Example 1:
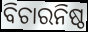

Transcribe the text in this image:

ବିଚାରନିଷ୍ଠ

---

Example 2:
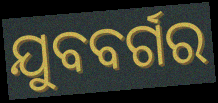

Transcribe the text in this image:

ଯୁବବର୍ଗର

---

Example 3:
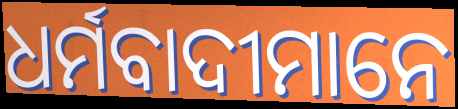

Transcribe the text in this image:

ଧର୍ମବାଦୀମାନେ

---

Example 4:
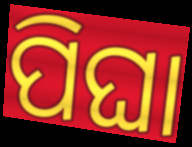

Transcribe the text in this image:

ପିଘା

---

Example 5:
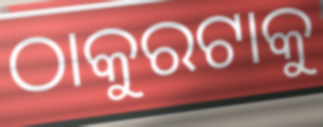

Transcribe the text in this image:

ଠାକୁରଟାକୁ